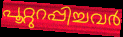
പൂറ്റുറപ്പിച്ചവർ